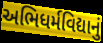
અભિધર્મવિદ્યાનું